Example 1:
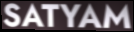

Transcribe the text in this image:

SATYAM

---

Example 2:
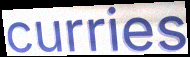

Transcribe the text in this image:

curries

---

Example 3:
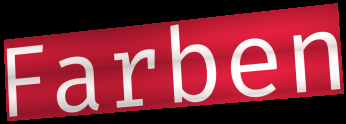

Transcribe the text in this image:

Farben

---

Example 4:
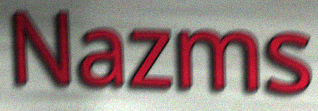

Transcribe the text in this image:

Nazms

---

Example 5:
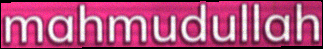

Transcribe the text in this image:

mahmudullah